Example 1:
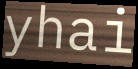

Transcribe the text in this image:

yhai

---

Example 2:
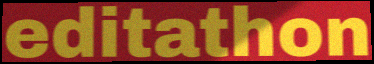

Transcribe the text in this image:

editathon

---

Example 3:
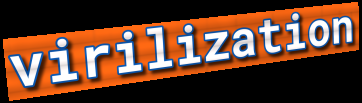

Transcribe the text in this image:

virilization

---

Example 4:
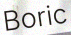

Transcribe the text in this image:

Boric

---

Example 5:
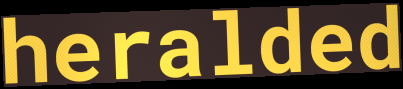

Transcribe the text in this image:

heralded